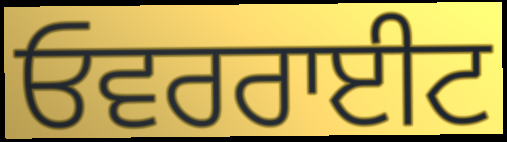
ਓਵਰਰਾਈਟ